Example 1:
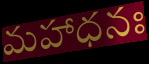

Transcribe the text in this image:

మహాధనః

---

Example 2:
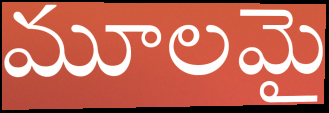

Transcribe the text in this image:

మూలమై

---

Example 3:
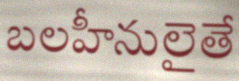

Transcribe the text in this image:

బలహీనులైతే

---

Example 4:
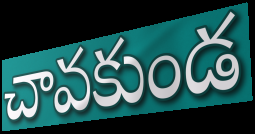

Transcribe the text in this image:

చావకుండ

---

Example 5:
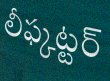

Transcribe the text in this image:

లీఫ్కట్టర్